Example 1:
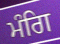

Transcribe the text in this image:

ਮੰਗਿ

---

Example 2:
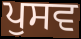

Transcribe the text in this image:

ਪੁਸਵ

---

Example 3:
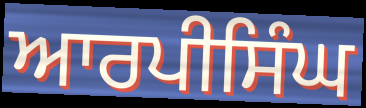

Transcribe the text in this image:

ਆਰਪੀਸਿੰਘ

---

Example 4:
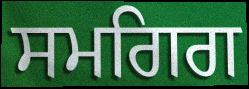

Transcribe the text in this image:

ਸਮਗਿਗ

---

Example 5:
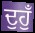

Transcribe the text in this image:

ਦੁਹੁਁ